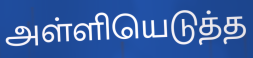
அள்ளியெடுத்த